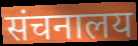
संचनालय